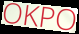
OKPO